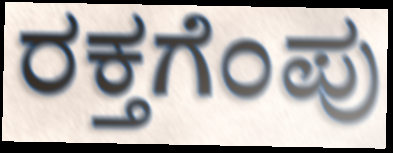
ರಕ್ತಗೆಂಪು